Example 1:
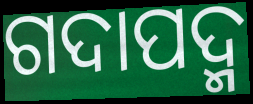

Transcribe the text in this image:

ଗଦାପଦ୍ମ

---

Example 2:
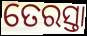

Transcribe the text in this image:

ତେରସ୍ତା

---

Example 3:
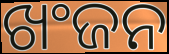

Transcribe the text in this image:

ଖଂଜନ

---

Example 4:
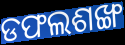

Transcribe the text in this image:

ଡଫଲଶଙ୍ଖ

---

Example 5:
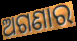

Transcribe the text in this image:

ଅଗଣାର